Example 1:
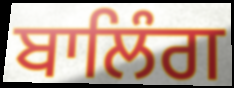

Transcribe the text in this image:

ਬਾਲਿੰਗ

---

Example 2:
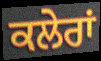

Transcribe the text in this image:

ਕਲੇਰਾਂ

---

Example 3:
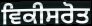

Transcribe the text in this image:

ਵਿਕੀਸਰੋਤ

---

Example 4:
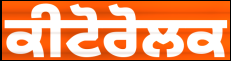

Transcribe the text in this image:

ਕੀਟੋਰੋਲਕ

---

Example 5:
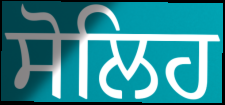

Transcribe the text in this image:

ਸੋਲਿਹ